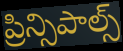
ప్రిన్సిపాల్స్